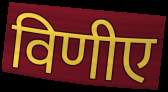
विणीए